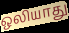
ஒலியாது